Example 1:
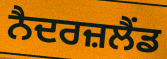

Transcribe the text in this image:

ਨੈਦਰਜ਼ਲੈਂਡ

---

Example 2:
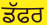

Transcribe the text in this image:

ਡੱਫਰ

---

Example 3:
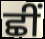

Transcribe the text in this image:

ਛੀਂ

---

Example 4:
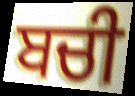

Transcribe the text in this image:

ਬਚੀ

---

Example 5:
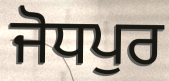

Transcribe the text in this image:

ਜੋਧਪੁਰ